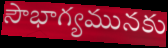
సౌభాగ్యమునకు